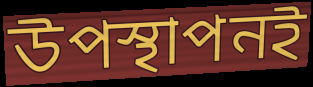
উপস্থাপনই